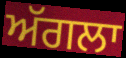
ਅੱਗਲਾ